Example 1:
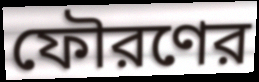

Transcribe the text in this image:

ফৌরণের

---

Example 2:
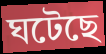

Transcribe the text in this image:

ঘটেছে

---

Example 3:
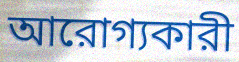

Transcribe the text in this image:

আরোগ্যকারী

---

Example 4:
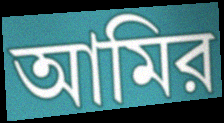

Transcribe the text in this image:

আমির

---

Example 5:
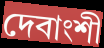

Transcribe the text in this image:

দেবাংশী